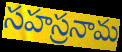
సహస్రనామ